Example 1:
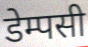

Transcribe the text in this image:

डेम्पसी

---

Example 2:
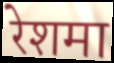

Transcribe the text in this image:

रेशमा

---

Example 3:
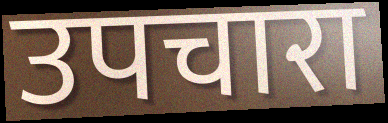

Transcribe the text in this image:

उपचारा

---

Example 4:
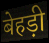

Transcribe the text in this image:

बेहड़ी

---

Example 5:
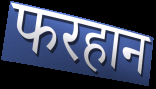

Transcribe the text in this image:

फरहान